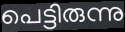
പെട്ടിരുന്നു